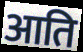
आति